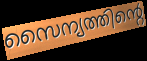
സൈന്യത്തിന്റെ